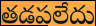
తడపలేదు